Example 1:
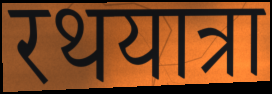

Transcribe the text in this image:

रथयात्रा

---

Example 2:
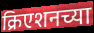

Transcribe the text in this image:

क्रिएशनच्या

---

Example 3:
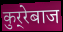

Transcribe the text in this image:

कुर्रेबाज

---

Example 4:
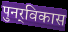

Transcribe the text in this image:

पुनर्विकास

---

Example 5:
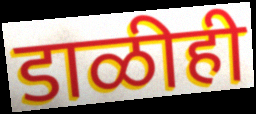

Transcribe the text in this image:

डाळीही